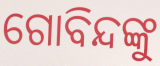
ଗୋବିନ୍ଦଙ୍କୁ